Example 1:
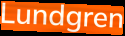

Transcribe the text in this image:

Lundgren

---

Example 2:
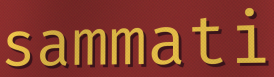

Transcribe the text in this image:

sammati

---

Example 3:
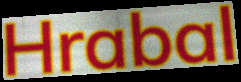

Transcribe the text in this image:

Hrabal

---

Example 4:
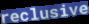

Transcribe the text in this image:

reclusive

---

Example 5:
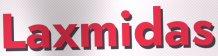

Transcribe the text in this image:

Laxmidas